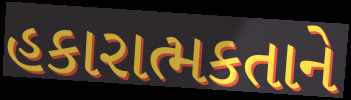
હકારાત્મકતાને